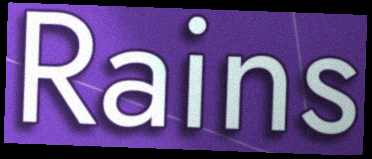
Rains